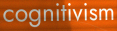
cognitivism